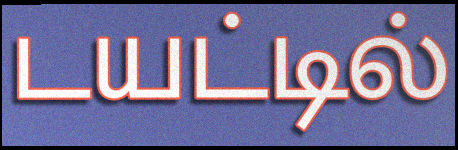
டயட்டில்